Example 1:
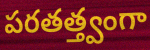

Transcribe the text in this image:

పరతత్త్వంగా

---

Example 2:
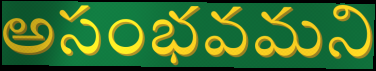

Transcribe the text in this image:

అసంభవమని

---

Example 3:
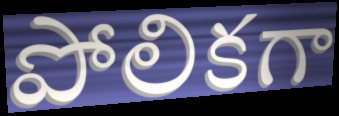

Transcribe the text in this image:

పోలికగా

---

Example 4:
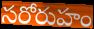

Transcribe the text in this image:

సరోరుహం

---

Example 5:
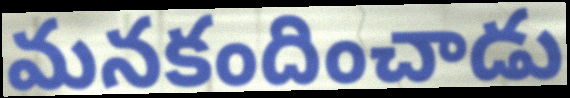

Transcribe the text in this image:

మనకందించాడు